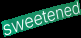
sweetened